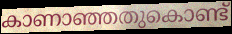
കാണാഞ്ഞതുകൊണ്ട്